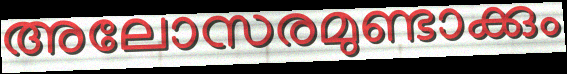
അലോസരമുണ്ടാക്കും